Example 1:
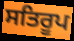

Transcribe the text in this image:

ਸਤਿਰੂਪ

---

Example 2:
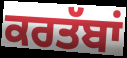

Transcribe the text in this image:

ਕਰਤੱਬਾਂ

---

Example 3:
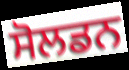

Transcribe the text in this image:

ਸੋਲਡਨ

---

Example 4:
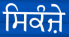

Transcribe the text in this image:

ਸਿਕੰਜ਼ੇ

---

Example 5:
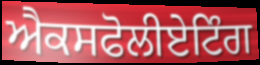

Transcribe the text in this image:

ਐਕਸਫੋਲੀਏਟਿੰਗ